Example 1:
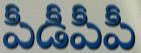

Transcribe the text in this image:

పీడీపీపీ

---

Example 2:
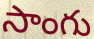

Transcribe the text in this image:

సాంగు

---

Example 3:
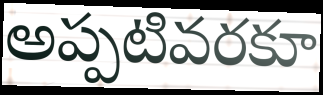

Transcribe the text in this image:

అప్పటివరకూ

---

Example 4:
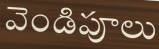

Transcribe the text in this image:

వెండిపూలు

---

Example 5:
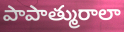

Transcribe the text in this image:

పాపాత్మురాలా